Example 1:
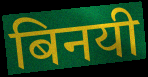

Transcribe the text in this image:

बिनयी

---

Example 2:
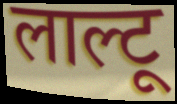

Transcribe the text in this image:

लाल्‍टू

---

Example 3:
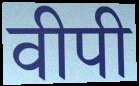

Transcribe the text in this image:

वीपी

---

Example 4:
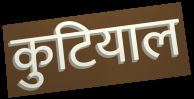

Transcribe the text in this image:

कुटियाल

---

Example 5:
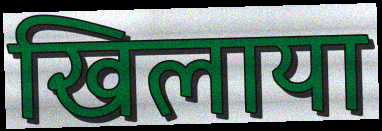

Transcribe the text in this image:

खिलाया